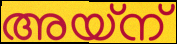
അയ്ന്